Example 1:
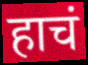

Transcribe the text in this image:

हाचं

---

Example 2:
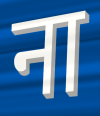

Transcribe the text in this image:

ना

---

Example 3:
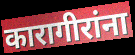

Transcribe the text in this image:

कारागीरांना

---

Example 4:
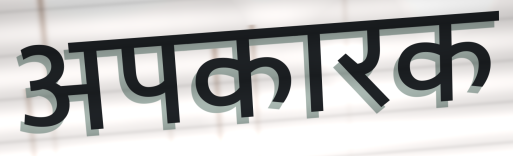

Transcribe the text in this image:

अपकारक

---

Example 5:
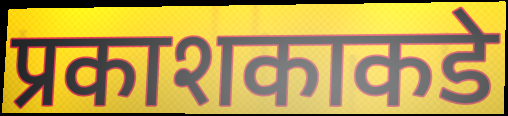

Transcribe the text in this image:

प्रकाशकाकडे